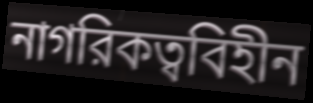
নাগরিকত্ববিহীন